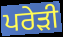
ਪਰੇੜੀ